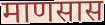
माणसास